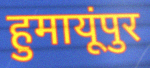
हुमायूंपुर